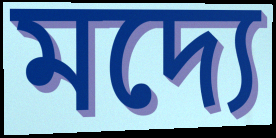
মদ্যে